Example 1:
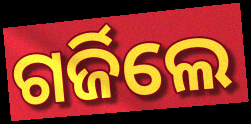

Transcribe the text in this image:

ଗର୍ଜିଲେ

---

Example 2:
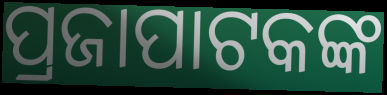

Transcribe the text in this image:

ପ୍ରଜାପାଟକଙ୍କ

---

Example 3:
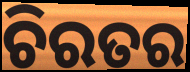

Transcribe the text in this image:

ଚିରତର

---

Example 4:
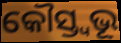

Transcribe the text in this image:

କୌସ୍ତ୍ୱଭୂ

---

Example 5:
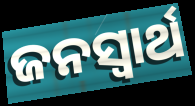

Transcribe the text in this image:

ଜନସ୍ଵାର୍ଥ